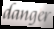
danger